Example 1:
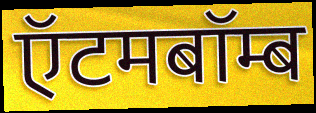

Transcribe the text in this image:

ऍटमबॉम्ब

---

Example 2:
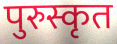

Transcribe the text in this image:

पुरुस्कृत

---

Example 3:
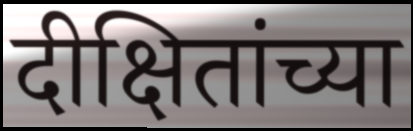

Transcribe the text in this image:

दीक्षितांच्या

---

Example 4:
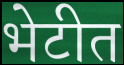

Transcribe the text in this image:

भेटीत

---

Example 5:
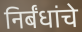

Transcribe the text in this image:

निर्बंधांचे